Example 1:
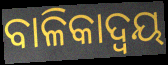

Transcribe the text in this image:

ବାଳିକାଦ୍ୱୟ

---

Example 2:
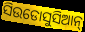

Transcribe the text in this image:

ସିଉଡୋସୁସିଆନ୍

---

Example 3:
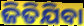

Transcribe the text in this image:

ଜିତିଯିବା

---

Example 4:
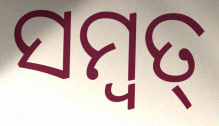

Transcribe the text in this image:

ସମ୍ବତ୍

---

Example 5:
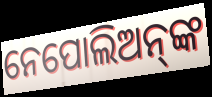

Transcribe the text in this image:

ନେପୋଲିଅନ୍‌ଙ୍କ